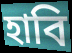
হাবি